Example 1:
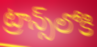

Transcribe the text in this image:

ట్రాన్స్‌లోకి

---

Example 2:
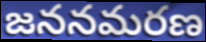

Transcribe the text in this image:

జననమరణ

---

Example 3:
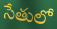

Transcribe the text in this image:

సేతులో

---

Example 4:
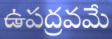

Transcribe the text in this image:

ఉపద్రవమే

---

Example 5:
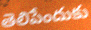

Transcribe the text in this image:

తెలిపేందుకు